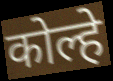
कोल्हे